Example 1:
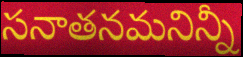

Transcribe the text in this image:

సనాతనమనిన్నీ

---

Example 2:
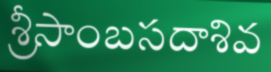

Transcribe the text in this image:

శ్రీసాంబసదాశివ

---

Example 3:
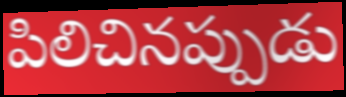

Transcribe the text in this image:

పిలిచినప్పుడు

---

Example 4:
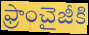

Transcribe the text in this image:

ఫ్రాంచైజీకి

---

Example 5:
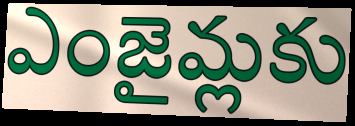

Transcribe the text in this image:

ఎంజైమ్లకు